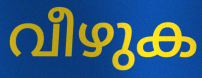
വീഴുക